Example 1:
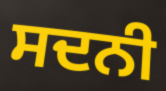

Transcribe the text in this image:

ਸਦਨੀ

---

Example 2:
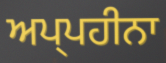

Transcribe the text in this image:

ਅਪ੍ਪਹੀਨਾ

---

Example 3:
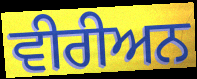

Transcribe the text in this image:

ਵੀਰੀਅਨ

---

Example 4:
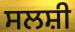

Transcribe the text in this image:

ਸਲਸ਼ੀ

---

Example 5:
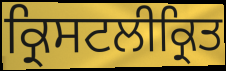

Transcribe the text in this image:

ਕ੍ਰਿਸਟਲੀਕ੍ਰਿਤ